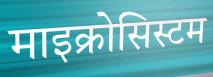
माइक्रोसिस्टम